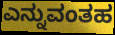
ಎನ್ನುವಂತಹ